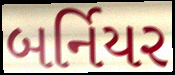
બર્નિયર